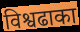
विश्वढाका